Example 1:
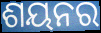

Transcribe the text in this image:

ଶୟନର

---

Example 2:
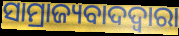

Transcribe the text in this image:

ସାମ୍ରାଜ୍ୟବାଦଦ୍ୱାରା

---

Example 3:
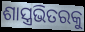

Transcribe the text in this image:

ଶାସ୍ତ୍ରଭିତରକୁ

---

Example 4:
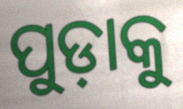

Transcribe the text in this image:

ପୁଡ଼ାକୁ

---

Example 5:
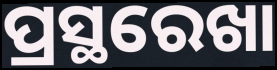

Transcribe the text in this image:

ପ୍ରସ୍ଥରେଖା